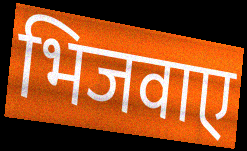
भिजवाए